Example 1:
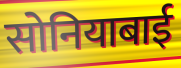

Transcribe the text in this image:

सोनियाबाई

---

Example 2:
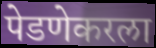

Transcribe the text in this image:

पेडणेकरला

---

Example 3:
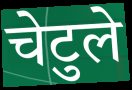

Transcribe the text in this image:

चेटुले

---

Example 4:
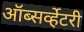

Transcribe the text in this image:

ऑब्सर्व्हेटरी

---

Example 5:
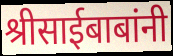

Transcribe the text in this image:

श्रीसाईबाबांनी